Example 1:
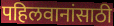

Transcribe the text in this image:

पहिलवानांसाठी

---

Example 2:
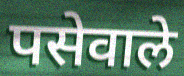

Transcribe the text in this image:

पसेवाले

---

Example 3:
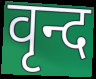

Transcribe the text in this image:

वृन्द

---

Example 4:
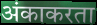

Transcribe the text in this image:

अंकाकरता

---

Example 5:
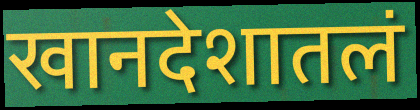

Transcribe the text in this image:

खानदेशातलं